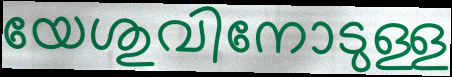
യേശുവിനോടുള്ള